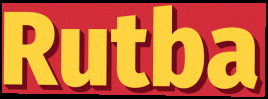
Rutba